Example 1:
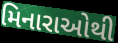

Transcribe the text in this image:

મિનારાઓથી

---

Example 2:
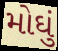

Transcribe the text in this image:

મોઘું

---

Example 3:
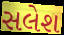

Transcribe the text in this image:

સલેશ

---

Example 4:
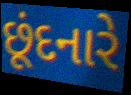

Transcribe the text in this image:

છૂંદનારે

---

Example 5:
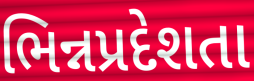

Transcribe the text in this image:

ભિન્નપ્રદેશતા